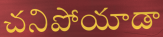
చనిపోయాడా